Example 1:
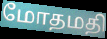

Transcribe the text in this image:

மோதமதி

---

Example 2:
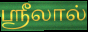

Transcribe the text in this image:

ஸ்ரீலால்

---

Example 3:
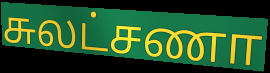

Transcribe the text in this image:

சுலட்சணா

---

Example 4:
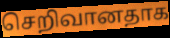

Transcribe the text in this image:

செறிவானதாக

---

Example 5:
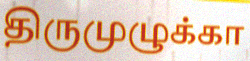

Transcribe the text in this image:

திருமுழுக்கா